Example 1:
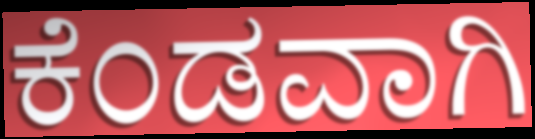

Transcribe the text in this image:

ಕೆಂಡವಾಗಿ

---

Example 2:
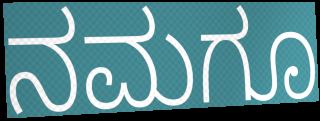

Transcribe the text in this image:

ನಮಗೂ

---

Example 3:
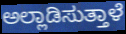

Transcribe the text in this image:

ಅಲ್ಲಾಡಿಸುತ್ತಾಳೆ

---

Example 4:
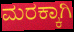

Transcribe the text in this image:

ಮರಕ್ಕಾಗಿ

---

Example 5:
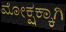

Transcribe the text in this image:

ಮೋಕ್ಷಕ್ಕಾಗಿ